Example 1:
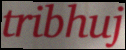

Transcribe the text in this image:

tribhuj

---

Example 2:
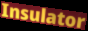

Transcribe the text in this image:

Insulator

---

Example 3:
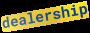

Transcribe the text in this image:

dealership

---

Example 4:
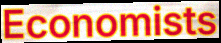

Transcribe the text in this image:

Economists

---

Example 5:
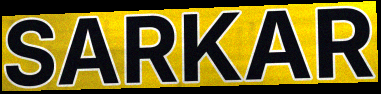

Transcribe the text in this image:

SARKAR